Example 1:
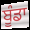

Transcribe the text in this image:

ਬੂੰਡਾ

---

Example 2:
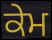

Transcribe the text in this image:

ਕੇਮ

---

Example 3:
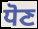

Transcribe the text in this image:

ਧੋਣ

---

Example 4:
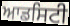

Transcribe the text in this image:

ਆਡਸਿਟੀ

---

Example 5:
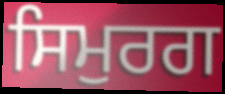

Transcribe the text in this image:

ਸਿਮੁਰਗ